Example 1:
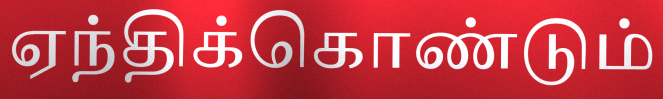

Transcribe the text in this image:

ஏந்திக்கொண்டும்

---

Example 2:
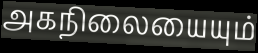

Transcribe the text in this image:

அகநிலையையும்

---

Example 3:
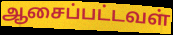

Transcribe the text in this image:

ஆசைப்பட்டவள்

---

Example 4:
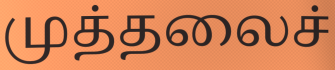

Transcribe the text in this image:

முத்தலைச்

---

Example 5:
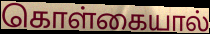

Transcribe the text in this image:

கொள்கையால்